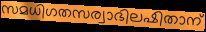
സമധിഗതസര്വാഭിലഷിതാന്